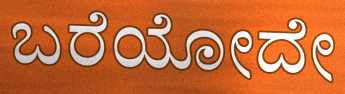
ಬರೆಯೋದೇ